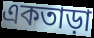
একতাড়া